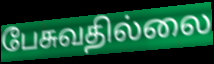
பேசுவதில்லை